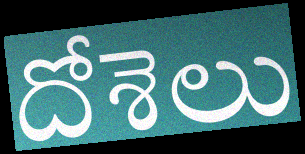
దోశెలు